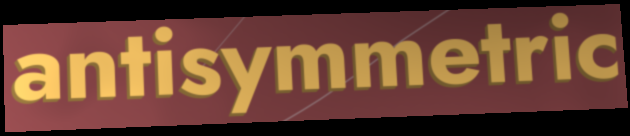
antisymmetric